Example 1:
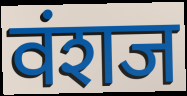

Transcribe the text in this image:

वंशज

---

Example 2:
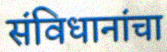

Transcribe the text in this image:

संविधानांचा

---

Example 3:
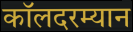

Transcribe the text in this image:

कॉलदरम्यान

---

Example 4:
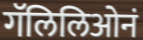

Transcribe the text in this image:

गॅलिलिओनं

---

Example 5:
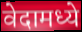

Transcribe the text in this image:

वेदामध्ये